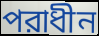
পরাধীন